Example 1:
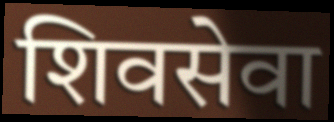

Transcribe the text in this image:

शिवसेवा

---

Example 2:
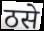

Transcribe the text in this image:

ठसे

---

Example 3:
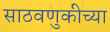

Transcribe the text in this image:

साठवणुकीच्या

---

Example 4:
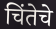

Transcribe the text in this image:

चिंतेचे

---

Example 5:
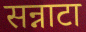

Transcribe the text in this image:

सन्नाटा